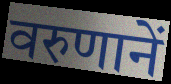
वरुणानें